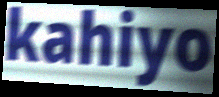
kahiyo